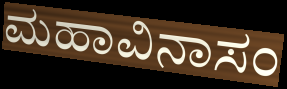
ಮಹಾವಿನಾಸಂ